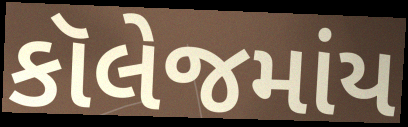
કૉલેજમાંય